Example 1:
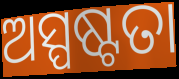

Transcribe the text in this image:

ଅସ୍ପଷ୍ଟତା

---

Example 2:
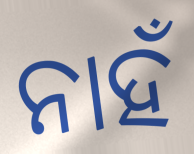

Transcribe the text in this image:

ନାହଁ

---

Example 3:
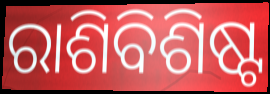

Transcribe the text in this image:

ରାଶିବିଶିଷ୍ଟ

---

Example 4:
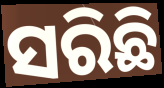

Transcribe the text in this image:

ସରିଛି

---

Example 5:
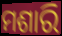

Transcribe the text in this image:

ମଶାରି